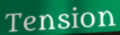
Tension